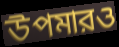
উপমারও